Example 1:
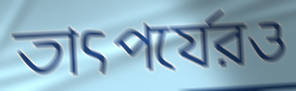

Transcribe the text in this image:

তাৎপর্যেরও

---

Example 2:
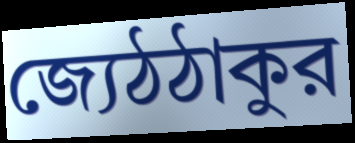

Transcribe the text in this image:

জ্যেঠঠাকুর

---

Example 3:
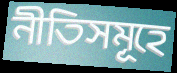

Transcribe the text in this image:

নীতিসমূহে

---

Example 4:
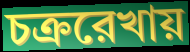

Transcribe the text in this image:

চক্ররেখায়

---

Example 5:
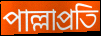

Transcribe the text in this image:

পাল্লাপ্রতি